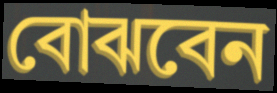
বোঝবেন